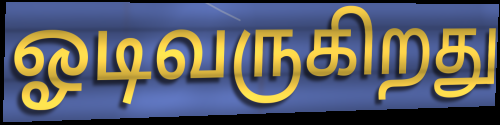
ஓடிவருகிறது